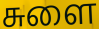
சுளை